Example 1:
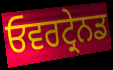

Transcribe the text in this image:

ਓਵਰਟ੍ਰੇਨਡ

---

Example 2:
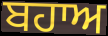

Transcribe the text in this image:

ਬਹਾਅ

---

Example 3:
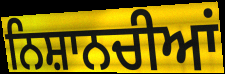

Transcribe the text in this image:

ਨਿਸ਼ਾਨਚੀਆਂ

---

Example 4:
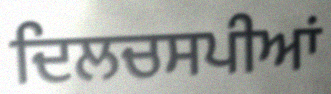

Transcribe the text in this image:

ਦਿਲਚਸਪੀਆਂ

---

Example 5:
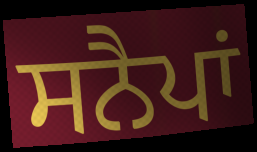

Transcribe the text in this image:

ਸਨੈਪਾਂ